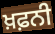
ਖ਼ਫ਼ਨੀ